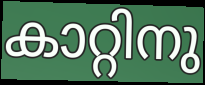
കാറ്റിനു